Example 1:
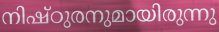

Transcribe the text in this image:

നിഷ്ഠുരനുമായിരുന്നു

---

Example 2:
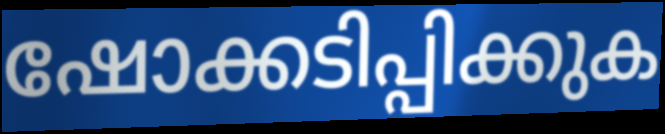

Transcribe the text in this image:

ഷോക്കടിപ്പിക്കുക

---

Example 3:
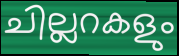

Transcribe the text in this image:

ചില്ലറകളും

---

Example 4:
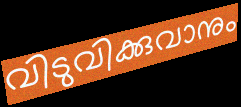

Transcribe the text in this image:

വിടുവിക്കുവാനും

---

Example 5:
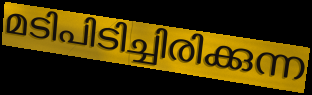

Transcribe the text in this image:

മടിപിടിച്ചിരിക്കുന്ന